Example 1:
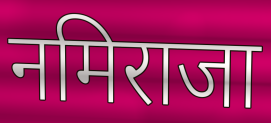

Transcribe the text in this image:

नमिराजा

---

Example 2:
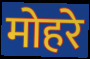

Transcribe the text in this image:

मोहरे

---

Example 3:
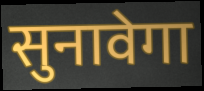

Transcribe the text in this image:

सुनावेगा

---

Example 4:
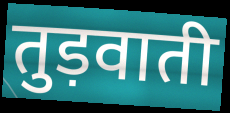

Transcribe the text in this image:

तुड़वाती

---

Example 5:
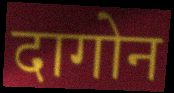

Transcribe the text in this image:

दागोन